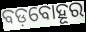
ବଡ଼ବୋହୂର